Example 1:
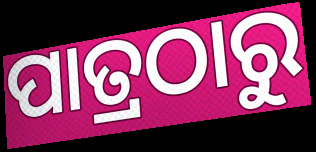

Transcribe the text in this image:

ପାତ୍ରଠାରୁ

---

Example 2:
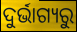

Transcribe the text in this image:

ଦୁର୍ଭାଗ୍ୟରୁ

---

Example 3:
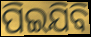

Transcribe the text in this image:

ପିଇଯିବି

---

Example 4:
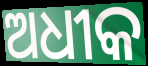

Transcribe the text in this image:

ଅଧୀକ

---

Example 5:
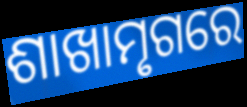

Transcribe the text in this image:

ଶାଖାମୃଗରେ